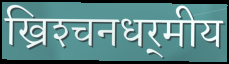
ख्रिश्चनधर्मीय